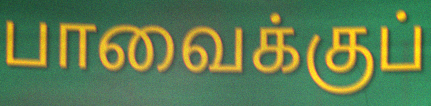
பாவைக்குப்